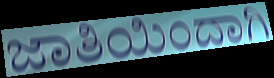
ಜಾತಿಯಿಂದಾಗಿ